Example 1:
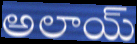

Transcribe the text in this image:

అలాయ్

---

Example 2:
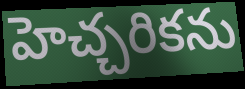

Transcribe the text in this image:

హెచ్చరికను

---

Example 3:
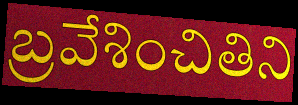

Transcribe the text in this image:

బ్రవేశించితిని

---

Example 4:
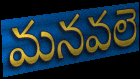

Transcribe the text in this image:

మనవలె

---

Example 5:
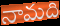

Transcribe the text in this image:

నామది